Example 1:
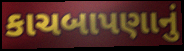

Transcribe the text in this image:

કાચબાપણાનું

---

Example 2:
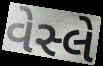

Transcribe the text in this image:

વેસ્લે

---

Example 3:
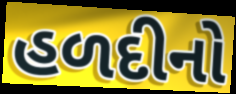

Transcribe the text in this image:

હળદીનો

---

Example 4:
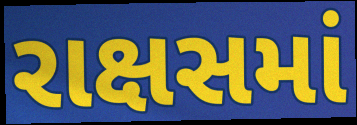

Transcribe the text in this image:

રાક્ષસમાં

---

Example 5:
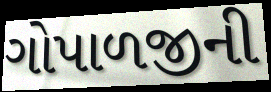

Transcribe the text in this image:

ગોપાળજીની